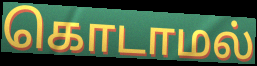
கொடாமல்